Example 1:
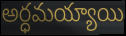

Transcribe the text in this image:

అర్ధమయ్యాయి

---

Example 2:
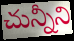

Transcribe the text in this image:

చున్నీని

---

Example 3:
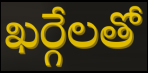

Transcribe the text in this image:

ఖర్గేలతో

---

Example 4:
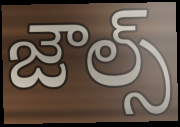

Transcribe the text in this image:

జౌల్స్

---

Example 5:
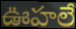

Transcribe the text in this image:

ఊహలే